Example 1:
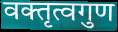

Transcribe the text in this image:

वक्तृत्वगुण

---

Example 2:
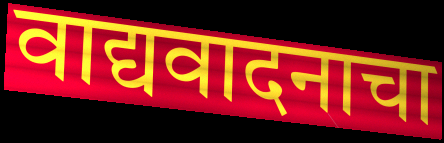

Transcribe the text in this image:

वाद्यवादनाचा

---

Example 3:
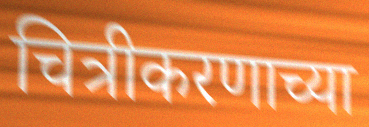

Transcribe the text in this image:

चित्रीकरणाच्या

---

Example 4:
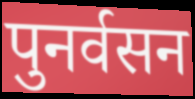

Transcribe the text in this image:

पुनर्वसन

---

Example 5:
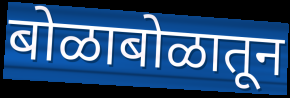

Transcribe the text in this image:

बोळाबोळातून